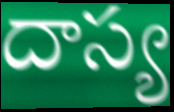
దాస్య